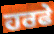
ਹਰਫੇ